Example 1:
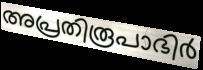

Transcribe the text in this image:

അപ്രതിരൂപാഭിർ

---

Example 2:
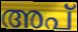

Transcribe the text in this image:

അപ്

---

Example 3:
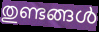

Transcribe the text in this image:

തുണ്ടങ്ങൾ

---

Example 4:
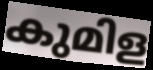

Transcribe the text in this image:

കുമിള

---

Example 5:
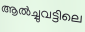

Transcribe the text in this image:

ആൽച്ചുവട്ടിലെ